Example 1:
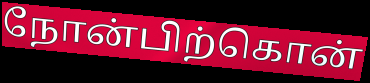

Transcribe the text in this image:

நோன்பிற்கொன்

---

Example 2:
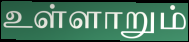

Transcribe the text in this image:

உள்ளாறும்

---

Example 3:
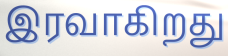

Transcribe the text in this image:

இரவாகிறது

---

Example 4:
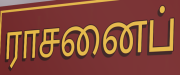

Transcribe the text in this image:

ராசனைப்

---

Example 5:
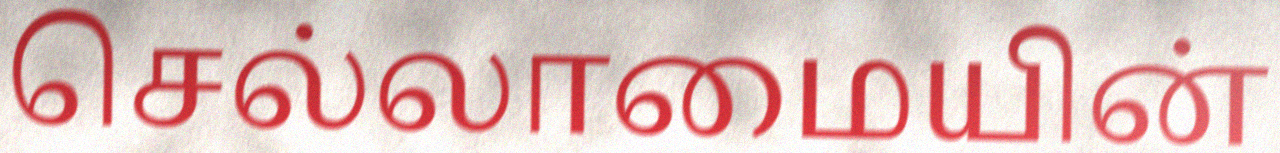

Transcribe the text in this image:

செல்லாமையின்